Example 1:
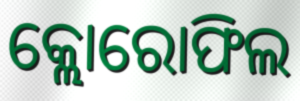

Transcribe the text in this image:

କ୍ଲୋରୋଫିଲ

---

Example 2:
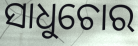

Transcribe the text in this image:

ସାଧୁଚୋର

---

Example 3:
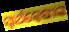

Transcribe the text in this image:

ସ୍ୱାର୍ଥନ୍ୱେଷୀଙ୍କ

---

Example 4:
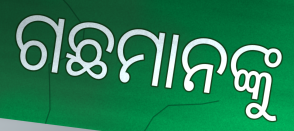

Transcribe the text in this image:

ଗଛମାନଙ୍କୁ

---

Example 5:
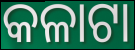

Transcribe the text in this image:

କଳାଟା